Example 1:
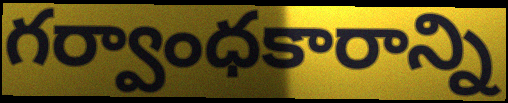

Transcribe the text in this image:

గర్వాంధకారాన్ని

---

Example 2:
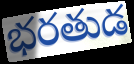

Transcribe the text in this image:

భరతుడ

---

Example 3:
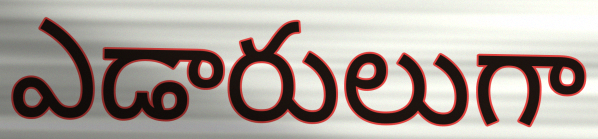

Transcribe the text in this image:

ఎడారులుగా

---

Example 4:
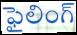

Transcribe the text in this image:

ఫైలింగ్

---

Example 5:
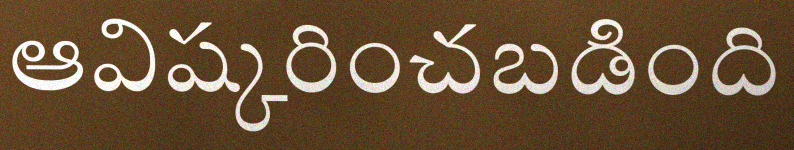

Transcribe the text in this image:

ఆవిష్కరించబడింది